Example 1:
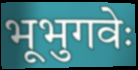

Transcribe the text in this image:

भूभुगवेः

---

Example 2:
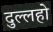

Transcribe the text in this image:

दुल्लहो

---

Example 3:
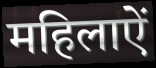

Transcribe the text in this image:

महिलाऐं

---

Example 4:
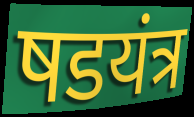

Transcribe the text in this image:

षडयंत्र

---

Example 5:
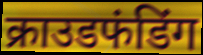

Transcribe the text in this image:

क्राउडफंडिंग